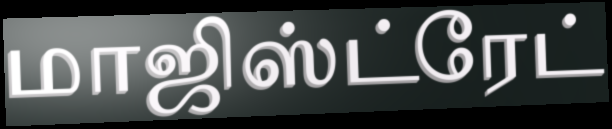
மாஜிஸ்ட்ரேட்